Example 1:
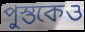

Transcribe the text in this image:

পুস্তকেও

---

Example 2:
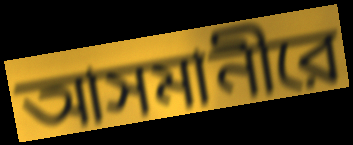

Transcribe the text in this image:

আসমানীরে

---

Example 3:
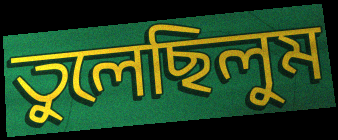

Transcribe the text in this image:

তুলেছিলুম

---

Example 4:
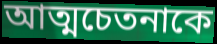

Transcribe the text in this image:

আত্মচেতনাকে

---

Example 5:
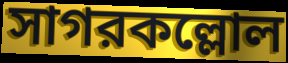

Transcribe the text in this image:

সাগরকল্লোল